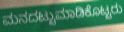
ಮನದಟ್ಟುಮಾಡಿಕೊಟ್ಟರು